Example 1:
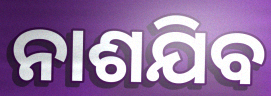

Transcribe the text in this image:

ନାଶଯିବ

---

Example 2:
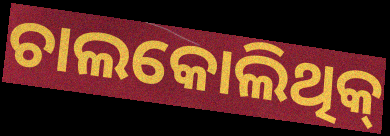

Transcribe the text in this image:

ଚାଲକୋଲିଥିକ୍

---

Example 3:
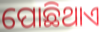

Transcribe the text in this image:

ପୋଛିଥାଏ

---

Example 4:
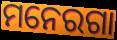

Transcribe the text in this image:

ମନେରଗା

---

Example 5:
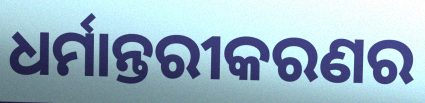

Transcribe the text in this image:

ଧର୍ମାନ୍ତରୀକରଣର